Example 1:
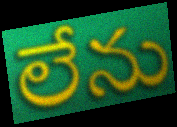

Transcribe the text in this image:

లేను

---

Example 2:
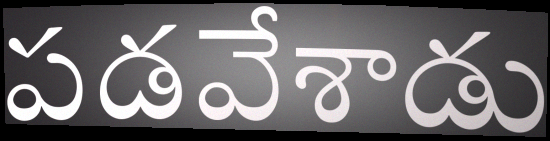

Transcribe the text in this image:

పడవేశాడు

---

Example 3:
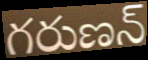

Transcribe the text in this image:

గరుణన్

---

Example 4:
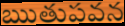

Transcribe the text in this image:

ఋతుపవన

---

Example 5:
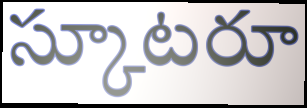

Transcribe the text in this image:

స్కూటరూ